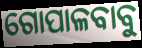
ଗୋପାଳବାବୁ